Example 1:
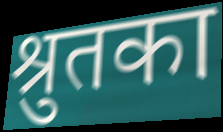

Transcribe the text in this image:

श्रुतका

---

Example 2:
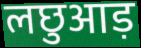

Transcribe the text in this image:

लछुआड़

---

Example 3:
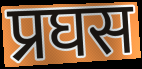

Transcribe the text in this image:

प्रघस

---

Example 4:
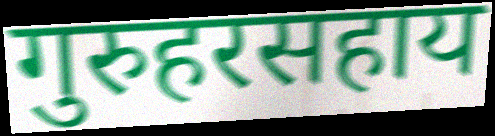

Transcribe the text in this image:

गुरुहरसहाय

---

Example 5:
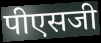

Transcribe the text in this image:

पीएसजी